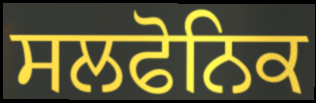
ਸਲਫੋਨਿਕ